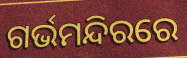
ଗର୍ଭମନ୍ଦିରରେ